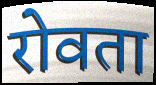
रोवता